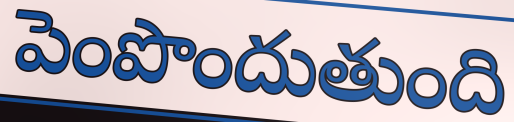
పెంపొందుతుంది